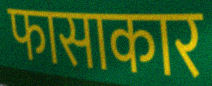
फासाकार